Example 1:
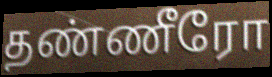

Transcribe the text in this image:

தண்ணீரோ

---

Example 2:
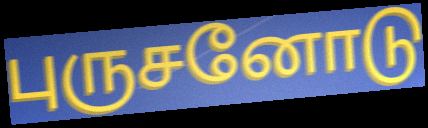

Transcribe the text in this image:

புருசனோடு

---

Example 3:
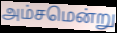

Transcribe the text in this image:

அம்சமென்று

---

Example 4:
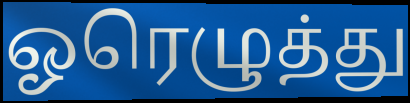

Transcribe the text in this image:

ஓரெழுத்து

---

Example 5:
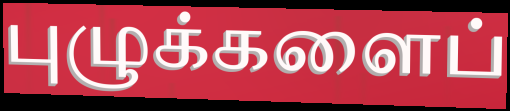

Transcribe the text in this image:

புழுக்களைப்